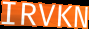
IRVKN